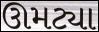
ઊમટ્યા